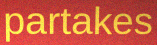
partakes